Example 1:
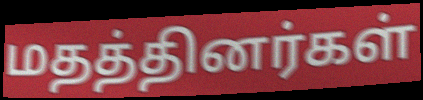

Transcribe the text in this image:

மதத்தினர்கள்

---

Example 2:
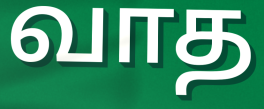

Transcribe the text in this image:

வாத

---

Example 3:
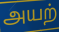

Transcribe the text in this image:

அயற்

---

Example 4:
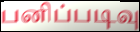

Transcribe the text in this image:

பனிப்படிவு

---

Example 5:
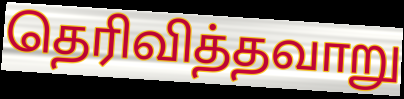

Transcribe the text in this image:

தெரிவித்தவாறு